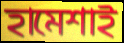
হামেশাই